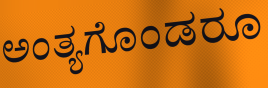
ಅಂತ್ಯಗೊಂಡರೂ